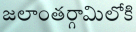
జలాంతర్గామిలోకి